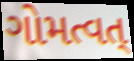
ગોમત્વત્